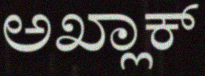
ಅಖ್ಲಾಕ್